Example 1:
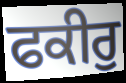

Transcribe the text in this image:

ਫਕੀਰੁ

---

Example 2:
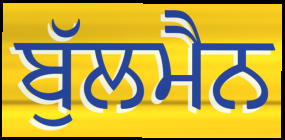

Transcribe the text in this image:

ਬੁੱਲਮੈਨ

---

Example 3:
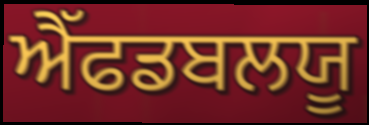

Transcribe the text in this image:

ਐੱਫਡਬਲਯੂ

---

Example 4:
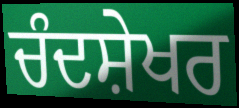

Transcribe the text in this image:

ਚੰਦਸ਼ੇਖਰ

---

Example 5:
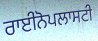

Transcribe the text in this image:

ਰਾਈਨੋਪਲਾਸਟੀ